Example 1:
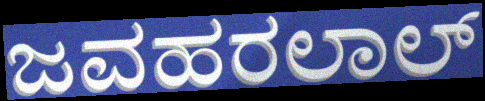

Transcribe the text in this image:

ಜವಹರಲಾಲ್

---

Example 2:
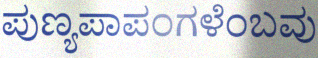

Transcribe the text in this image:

ಪುಣ್ಯಪಾಪಂಗಳೆಂಬವು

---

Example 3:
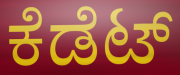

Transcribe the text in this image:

ಕೆಡೆಟ್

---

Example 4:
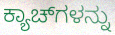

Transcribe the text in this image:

ಕ್ಯಾಚ್‌ಗಳನ್ನು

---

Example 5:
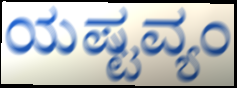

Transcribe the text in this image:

ಯಷ್ಟವ್ಯಂ